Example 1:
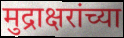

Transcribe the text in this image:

मुद्राक्षरांच्या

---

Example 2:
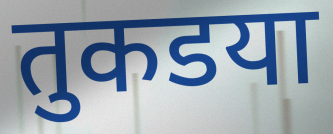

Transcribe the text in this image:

तुकडया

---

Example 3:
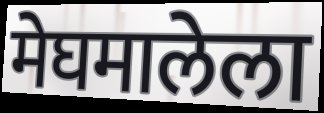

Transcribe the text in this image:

मेघमालेला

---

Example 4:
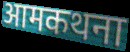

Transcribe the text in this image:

आमकथना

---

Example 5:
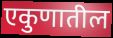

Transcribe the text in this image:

एकुणातील